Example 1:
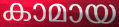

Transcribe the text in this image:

കാമായ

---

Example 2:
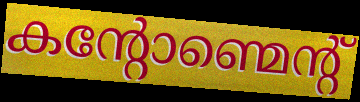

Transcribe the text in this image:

കന്റോണ്മെന്റ്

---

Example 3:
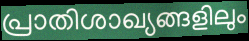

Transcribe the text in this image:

പ്രാതിശാഖ്യങ്ങളിലും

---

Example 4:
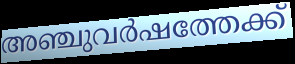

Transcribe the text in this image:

അഞ്ചുവർഷത്തേക്ക്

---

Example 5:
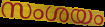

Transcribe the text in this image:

സംശയം